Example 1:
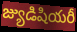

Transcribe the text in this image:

జ్యుడిషియరీ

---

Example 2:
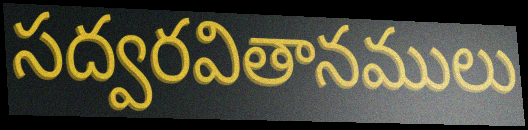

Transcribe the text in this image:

సద్వరవితానములు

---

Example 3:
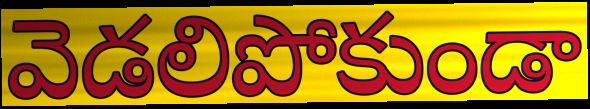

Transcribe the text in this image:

వెడలిపోకుండా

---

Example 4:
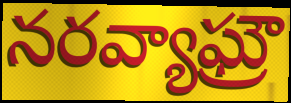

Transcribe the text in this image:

నరవ్యాఘ్రౌ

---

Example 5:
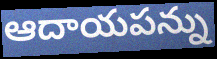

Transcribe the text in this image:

ఆదాయపన్ను